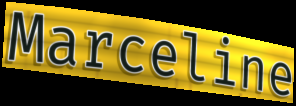
Marceline